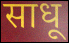
साधू